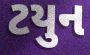
ટયુન